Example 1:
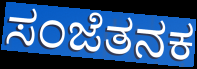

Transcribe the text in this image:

ಸಂಜೆತನಕ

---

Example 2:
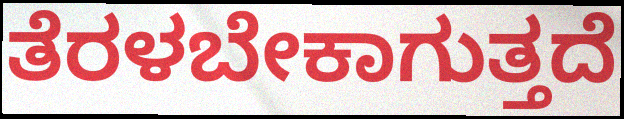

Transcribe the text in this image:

ತೆರಳಬೇಕಾಗುತ್ತದೆ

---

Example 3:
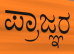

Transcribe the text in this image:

ಪ್ರಾಜ್ಞರ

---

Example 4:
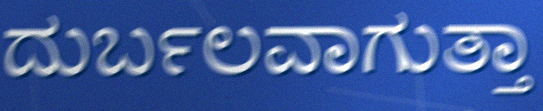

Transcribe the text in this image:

ದುರ್ಬಲವಾಗುತ್ತಾ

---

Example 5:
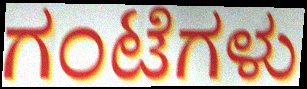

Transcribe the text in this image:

ಗಂಟೆಗಳು